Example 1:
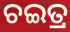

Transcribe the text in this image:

ଚଇତ୍ର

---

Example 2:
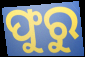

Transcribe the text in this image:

ଫୁରୁ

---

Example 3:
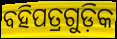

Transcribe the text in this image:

ବହିପତ୍ରଗୁଡ଼ିକ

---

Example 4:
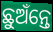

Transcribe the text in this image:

ଛୁଅଁନ୍ତେ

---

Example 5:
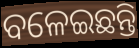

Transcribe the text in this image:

ବଳେଇଛନ୍ତି